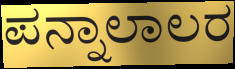
ಪನ್ನಾಲಾಲರ